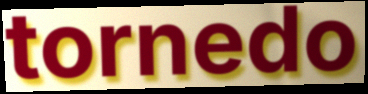
tornedo